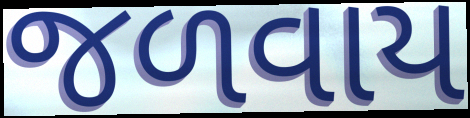
જળવાય